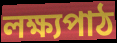
লক্ষ্যপাঠ